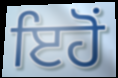
ਇਹੋਂ